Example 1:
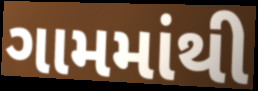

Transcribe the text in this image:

ગામમાંથી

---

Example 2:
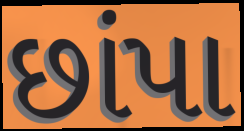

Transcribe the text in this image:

છાંપા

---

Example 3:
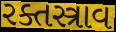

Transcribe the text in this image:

રક્તસ્ત્રાવ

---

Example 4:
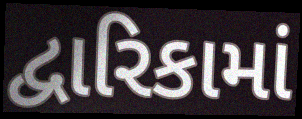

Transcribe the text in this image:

દ્વારિકામાં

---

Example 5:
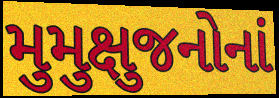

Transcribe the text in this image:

મુમુક્ષુજનોનાં